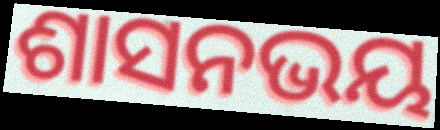
ଶାସନଭୟ